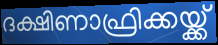
ദക്ഷിണാഫ്രിക്കയ്ക്ക്